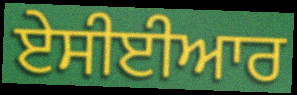
ਏਸੀਈਆਰ